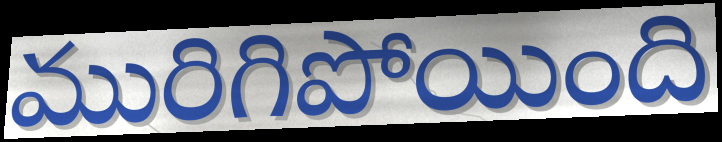
మురిగిపోయింది